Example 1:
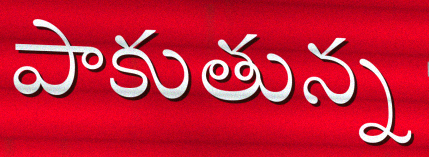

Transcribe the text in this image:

పాకుతున్న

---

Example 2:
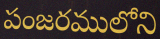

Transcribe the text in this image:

పంజరములోని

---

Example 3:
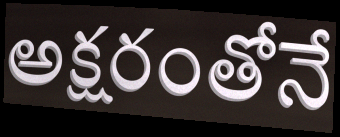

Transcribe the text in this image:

అక్షరంతోనే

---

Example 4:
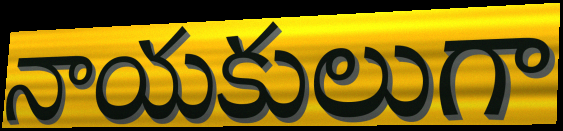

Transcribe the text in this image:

నాయకులుగా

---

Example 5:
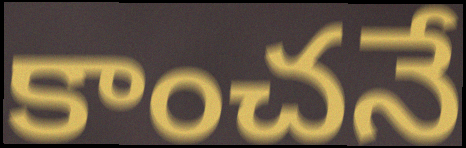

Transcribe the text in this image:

కాంచనే